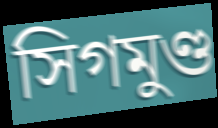
সিগমুণ্ড